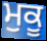
ਮੁਕੂ